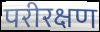
परीरक्षण